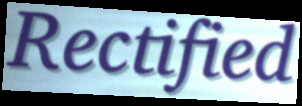
Rectified